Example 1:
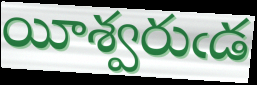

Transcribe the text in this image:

యీశ్వరుఁడ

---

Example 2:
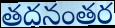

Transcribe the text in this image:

తదనంతర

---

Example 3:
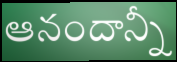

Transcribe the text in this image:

ఆనందాన్నీ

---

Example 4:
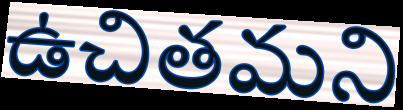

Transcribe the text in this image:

ఉచితమని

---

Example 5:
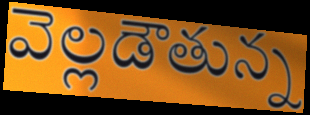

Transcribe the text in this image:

వెల్లడౌతున్న